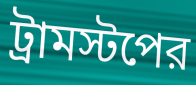
ট্রামস্টপের